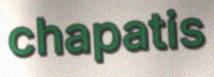
chapatis